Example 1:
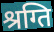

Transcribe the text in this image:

श्रग्ति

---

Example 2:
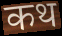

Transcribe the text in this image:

कथ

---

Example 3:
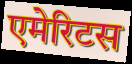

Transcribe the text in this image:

एमेरिटस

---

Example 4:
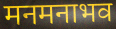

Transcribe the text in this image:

मनमनाभव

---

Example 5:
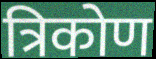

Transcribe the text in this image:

त्रिकोण